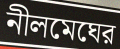
নীলমেঘের